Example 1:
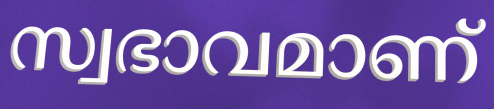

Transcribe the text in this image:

സ്വഭാവമാണ്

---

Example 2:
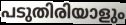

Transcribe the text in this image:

പടുതിരിയാളും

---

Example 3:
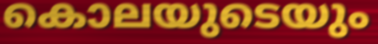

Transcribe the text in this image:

കൊലയുടെയും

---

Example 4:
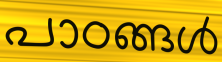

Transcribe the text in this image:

പാഠങ്ങൾ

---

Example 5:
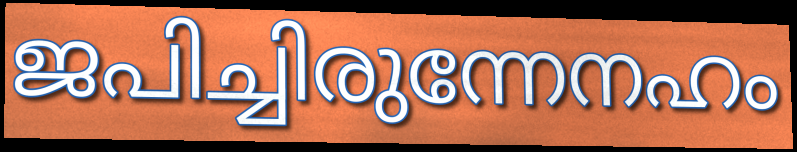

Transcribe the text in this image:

ജപിച്ചിരുന്നേനഹം